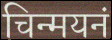
चिन्मयनं